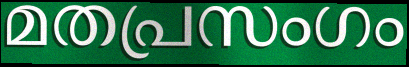
മതപ്രസംഗം